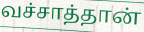
வச்சாத்தான்